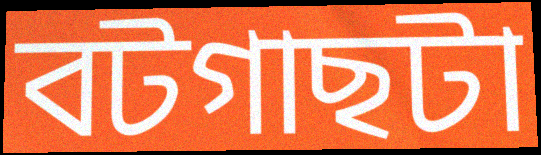
বটগাছটা